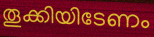
തൂക്കിയിടേണം